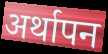
अर्थापन